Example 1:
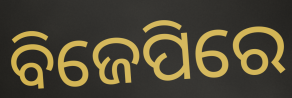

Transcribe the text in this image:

ବିଜେପିରେ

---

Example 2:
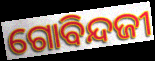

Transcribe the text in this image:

ଗୋବିନ୍ଦଜୀ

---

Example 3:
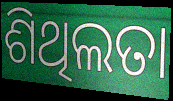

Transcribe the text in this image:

ଶିଥିଲତା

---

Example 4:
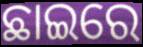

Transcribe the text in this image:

ଛାଇରେ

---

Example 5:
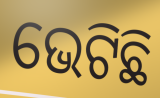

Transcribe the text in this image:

ଭେଟିଛି